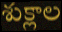
శుక్లాల